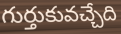
గుర్తుకువచ్చేది